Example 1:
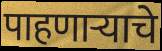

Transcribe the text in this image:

पाहणाऱ्याचे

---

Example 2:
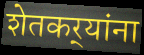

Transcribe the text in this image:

शेतकर्यांना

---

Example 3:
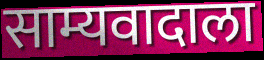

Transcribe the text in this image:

साम्यवादाला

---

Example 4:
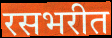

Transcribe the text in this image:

रसभरीत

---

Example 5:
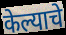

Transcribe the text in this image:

केल्याचे